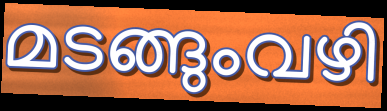
മടങ്ങുംവഴി